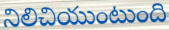
నిలిచియుంటుంది